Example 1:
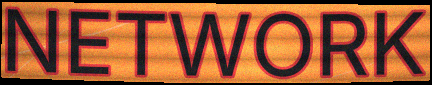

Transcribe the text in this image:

NETWORK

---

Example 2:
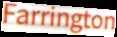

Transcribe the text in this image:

Farrington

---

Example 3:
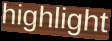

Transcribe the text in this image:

highlight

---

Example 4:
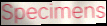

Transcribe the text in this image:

Specimens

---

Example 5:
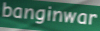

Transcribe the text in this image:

banginwar